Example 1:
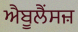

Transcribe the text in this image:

ਐਬੂਲੈਂਸਜ਼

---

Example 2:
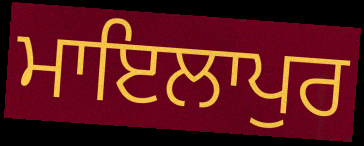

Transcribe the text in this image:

ਮਾਇਲਾਪੁਰ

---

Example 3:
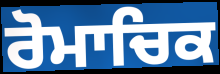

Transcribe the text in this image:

ਰੋਮਾਚਿਕ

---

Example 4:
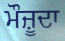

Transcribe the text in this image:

ਮੌਜ਼ੂਦਾ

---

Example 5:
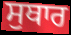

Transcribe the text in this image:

ਸੁਥਾਰ